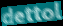
dettol